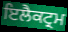
ਇਲੈਕਟ੍ਰਮ